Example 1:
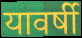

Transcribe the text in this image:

यावर्षी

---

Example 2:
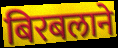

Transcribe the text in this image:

बिरबलाने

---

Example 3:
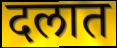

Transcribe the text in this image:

दलात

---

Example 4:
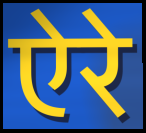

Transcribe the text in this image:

ऐरे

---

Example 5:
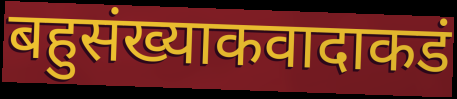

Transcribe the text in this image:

बहुसंख्याकवादाकडं